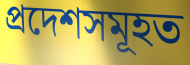
প্ৰদেশসমূহত